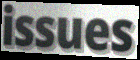
issues